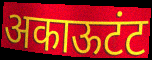
अकाऊटंट